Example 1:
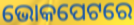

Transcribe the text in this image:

ଭୋକପେଟରେ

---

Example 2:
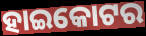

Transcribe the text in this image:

ହାଇକୋଟର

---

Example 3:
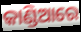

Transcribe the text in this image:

କାଣ୍ଡିଆରେ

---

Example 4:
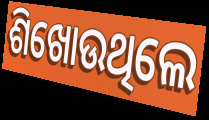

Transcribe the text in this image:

ଶିଖୋଉଥିଲେ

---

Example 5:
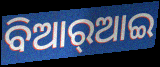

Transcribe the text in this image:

ବିଆର୍‌ଆଇ